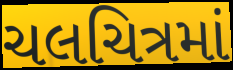
ચલચિત્રમાં